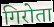
गिरोता